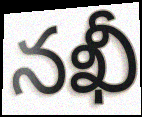
నఖీ